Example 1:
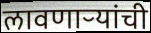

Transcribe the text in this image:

लावणाऱ्यांची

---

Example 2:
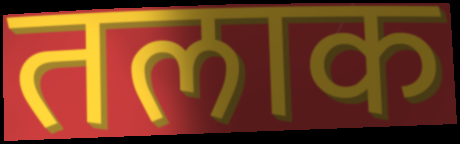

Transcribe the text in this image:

तलाक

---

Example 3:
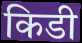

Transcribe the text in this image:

किडी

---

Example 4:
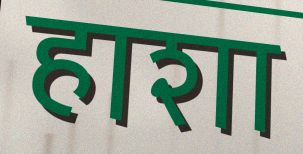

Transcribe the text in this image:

हाशा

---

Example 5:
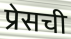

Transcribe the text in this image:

प्रेसची